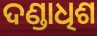
ଦଣ୍ଡାଧିଶ